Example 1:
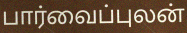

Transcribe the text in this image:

பார்வைப்புலன்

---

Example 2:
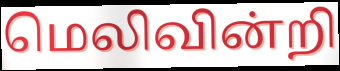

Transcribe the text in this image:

மெலிவின்றி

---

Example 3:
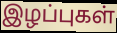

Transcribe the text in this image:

இழப்புகள்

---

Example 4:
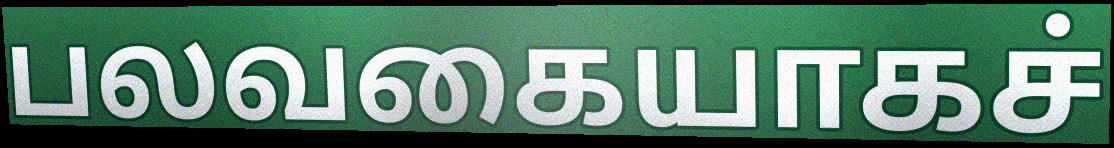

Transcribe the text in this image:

பலவகையாகச்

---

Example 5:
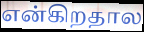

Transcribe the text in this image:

என்கிறதால